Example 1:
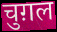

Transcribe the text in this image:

चुग़ल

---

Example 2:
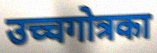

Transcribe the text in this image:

उच्चगोत्रका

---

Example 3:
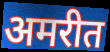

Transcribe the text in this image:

अमरीत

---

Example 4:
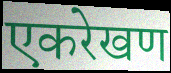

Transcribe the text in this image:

एकरेखण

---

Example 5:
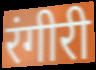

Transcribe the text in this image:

रंगीरी